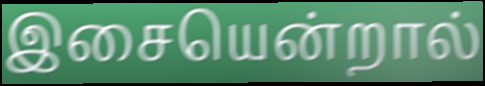
இசையென்றால்